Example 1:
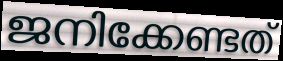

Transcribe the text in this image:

ജനിക്കേണ്ടത്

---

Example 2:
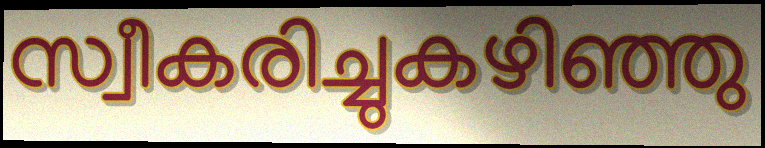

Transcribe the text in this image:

സ്വീകരിച്ചുകഴിഞ്ഞു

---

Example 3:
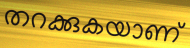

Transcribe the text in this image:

തറക്കുകയാണ്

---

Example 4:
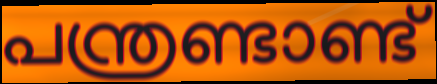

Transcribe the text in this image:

പന്ത്രണ്ടാണ്ട്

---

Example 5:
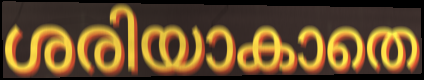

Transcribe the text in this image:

ശരിയാകാതെ